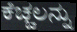
ಕೆಚ್ಚಲನ್ನು